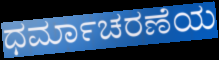
ಧರ್ಮಾಚರಣೆಯ